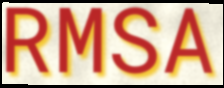
RMSA